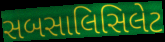
સબસાલિસિલેટ